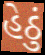
હેઠું